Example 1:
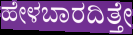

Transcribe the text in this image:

ಹೇಳಬಾರದಿತ್ತೇ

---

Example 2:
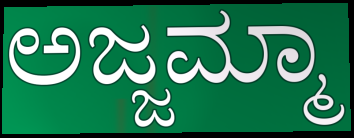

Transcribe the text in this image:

ಅಜ್ಜಮ್ಮಾ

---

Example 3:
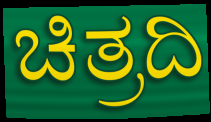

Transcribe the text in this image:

ಚಿತ್ರದಿ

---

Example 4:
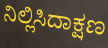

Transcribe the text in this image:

ನಿಲ್ಲಿಸಿದಾಕ್ಷಣ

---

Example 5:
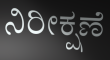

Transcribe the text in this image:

ನಿರೀಕ್ಷಣೆ